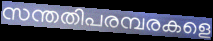
സന്തതിപരമ്പരകളെ